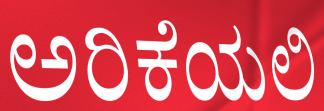
ಅರಿಕೆಯಲಿ